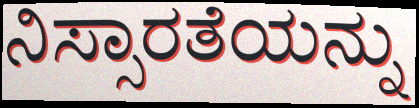
ನಿಸ್ಸಾರತೆಯನ್ನು